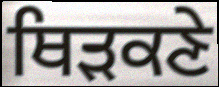
ਥਿੜਕਣੇ